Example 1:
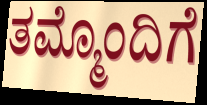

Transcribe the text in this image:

ತಮ್ಮೊಂದಿಗೆ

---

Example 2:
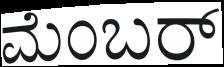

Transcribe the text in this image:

ಮೆಂಬರ್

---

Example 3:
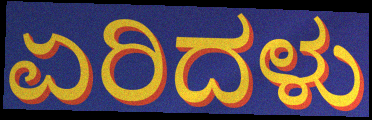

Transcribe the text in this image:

ಏರಿದಳು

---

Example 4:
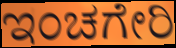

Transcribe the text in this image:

ಇಂಚಗೇರಿ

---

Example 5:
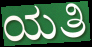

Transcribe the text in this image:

ಯತಿ